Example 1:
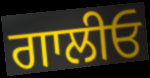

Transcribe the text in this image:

ਗਾਲੀਓ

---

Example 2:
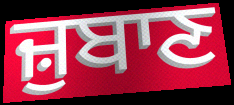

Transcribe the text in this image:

ਜ਼ੁਬਾਣ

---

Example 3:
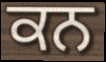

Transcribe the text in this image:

ਕਨ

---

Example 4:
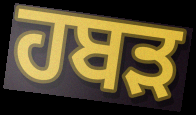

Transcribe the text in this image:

ਹਬੜ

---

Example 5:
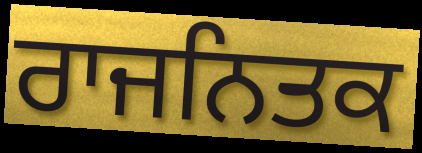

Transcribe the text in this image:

ਰਾਜਨਿਤਕ